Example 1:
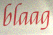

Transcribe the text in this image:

blaag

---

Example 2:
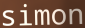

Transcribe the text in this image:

simon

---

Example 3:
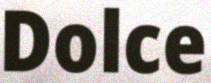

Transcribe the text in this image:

Dolce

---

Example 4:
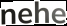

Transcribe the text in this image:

nehe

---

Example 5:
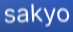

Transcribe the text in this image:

sakyo